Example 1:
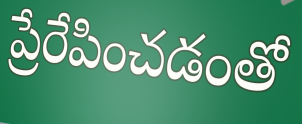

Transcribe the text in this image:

ప్రేరేపించడంతో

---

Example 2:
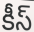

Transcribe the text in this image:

కీస్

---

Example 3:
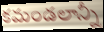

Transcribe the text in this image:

కమండలాన్నీ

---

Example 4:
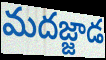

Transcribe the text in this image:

మదజ్జాడ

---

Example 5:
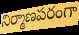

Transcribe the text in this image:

నిర్మాణపరంగా